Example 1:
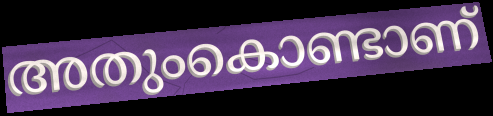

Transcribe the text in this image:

അതുംകൊണ്ടാണ്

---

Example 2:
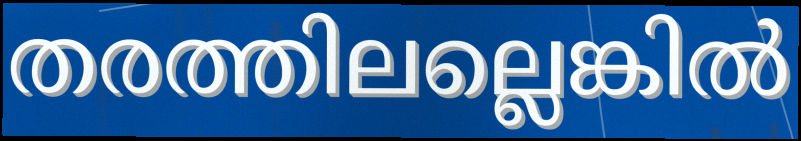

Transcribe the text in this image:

തരത്തിലല്ലെങ്കിൽ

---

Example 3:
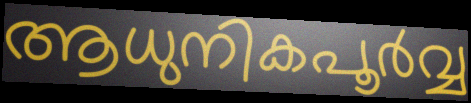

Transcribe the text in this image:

ആധുനികപൂർവ്വ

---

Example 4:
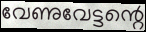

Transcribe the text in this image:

വേണുവേട്ടന്റെ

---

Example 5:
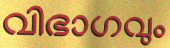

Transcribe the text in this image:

വിഭാഗവും